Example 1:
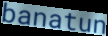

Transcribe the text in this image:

banatun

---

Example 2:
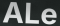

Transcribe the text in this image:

ALe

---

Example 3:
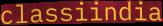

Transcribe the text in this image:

classiindia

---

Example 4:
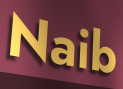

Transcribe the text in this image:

Naib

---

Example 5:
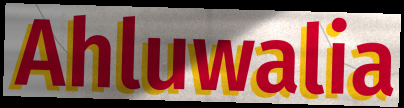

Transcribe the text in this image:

Ahluwalia